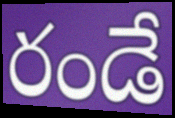
రండే